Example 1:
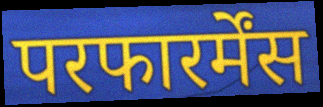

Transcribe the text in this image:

परफारर्मेंस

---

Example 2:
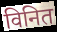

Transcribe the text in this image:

विनित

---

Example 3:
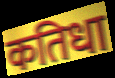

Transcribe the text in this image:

कतिधा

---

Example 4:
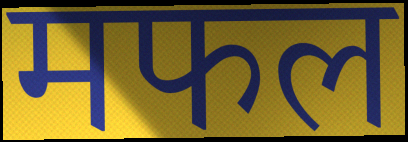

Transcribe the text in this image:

मफल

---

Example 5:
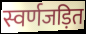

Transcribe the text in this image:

स्वर्णजड़ित